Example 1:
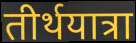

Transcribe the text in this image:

तीर्थयात्रा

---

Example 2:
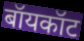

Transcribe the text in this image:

बॉयकॉट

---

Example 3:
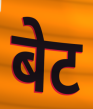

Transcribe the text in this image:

बेट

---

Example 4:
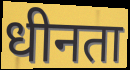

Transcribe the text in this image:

धीनता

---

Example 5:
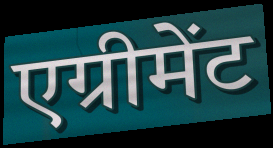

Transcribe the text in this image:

एग्रीमेंट